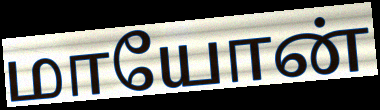
மாயோன்